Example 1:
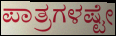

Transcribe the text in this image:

ಪಾತ್ರಗಳಷ್ಟೇ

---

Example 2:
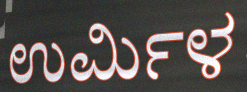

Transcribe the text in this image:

ಉರ್ಮಿಳ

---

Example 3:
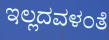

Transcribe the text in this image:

ಇಲ್ಲದವಳಂತೆ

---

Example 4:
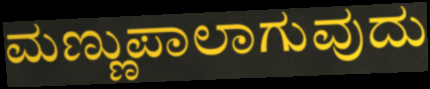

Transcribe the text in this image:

ಮಣ್ಣುಪಾಲಾಗುವುದು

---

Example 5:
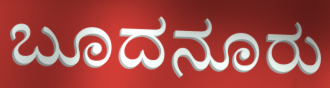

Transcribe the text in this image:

ಬೂದನೂರು